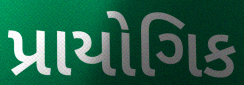
પ્રાયોગિક